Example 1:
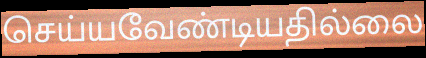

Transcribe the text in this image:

செய்யவேண்டியதில்லை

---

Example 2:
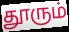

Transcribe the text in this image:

தூரும்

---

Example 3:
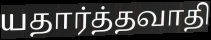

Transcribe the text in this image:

யதார்த்தவாதி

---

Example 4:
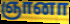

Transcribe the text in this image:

ஞானா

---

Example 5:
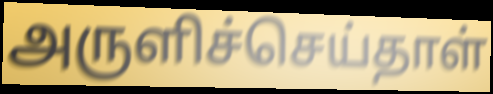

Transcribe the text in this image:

அருளிச்செய்தாள்